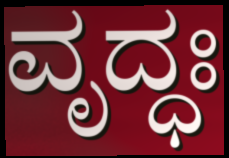
ವೃದ್ಧಃ